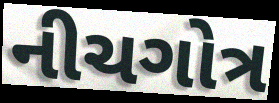
નીચગોત્ર